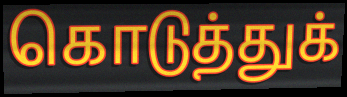
கொடுத்துக்